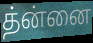
த்ன்னை